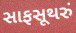
સાફસૂથરું